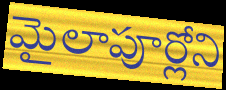
మైలాపూర్లోని